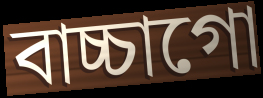
বাচ্চাগো